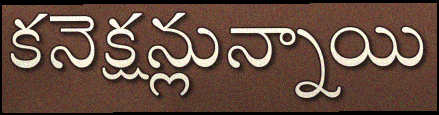
కనెక్షన్లున్నాయి